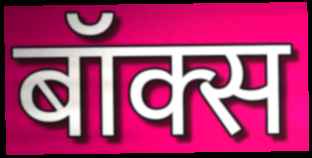
बॉक्‍स